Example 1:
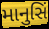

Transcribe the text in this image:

માનુસિં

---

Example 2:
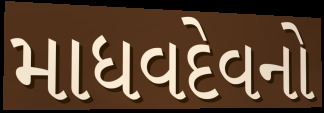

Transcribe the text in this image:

માધવદેવનો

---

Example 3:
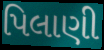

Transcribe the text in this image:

પિલાણી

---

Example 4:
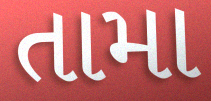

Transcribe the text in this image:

તામા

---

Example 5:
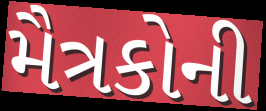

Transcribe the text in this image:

મૈત્રકોની